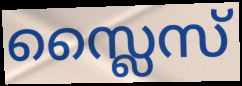
സ്ലൈസ്